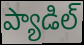
ప్యాడిల్